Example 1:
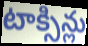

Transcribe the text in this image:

టాక్సిన్లు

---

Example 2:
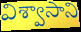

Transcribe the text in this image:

విశ్వాసాని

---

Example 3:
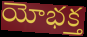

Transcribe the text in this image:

యోభక్త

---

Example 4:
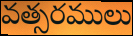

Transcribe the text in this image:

వత్సరములు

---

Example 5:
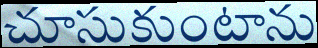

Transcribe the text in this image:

చూసుకుంటాను